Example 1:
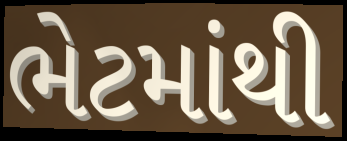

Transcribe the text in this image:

ભેટમાંથી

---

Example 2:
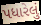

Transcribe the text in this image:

પધારેલું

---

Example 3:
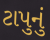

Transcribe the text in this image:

ટાપુનું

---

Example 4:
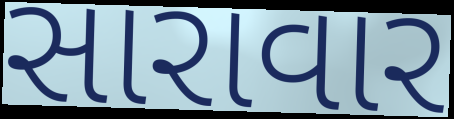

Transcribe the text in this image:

સારાવાર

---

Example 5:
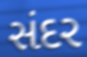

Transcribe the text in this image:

સંદર